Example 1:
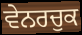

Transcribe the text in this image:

ਵੇਨਰਚੁਕ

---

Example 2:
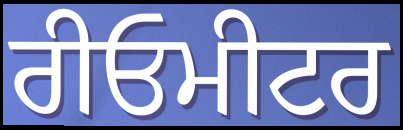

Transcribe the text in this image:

ਰੀਓਮੀਟਰ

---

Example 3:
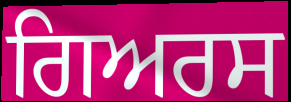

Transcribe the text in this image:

ਗਿਅਰਸ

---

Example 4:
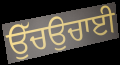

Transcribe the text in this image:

ਉੱਚਉਚਾਈ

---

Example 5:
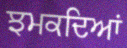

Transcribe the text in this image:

ਝਮਕਦਿਆਂ